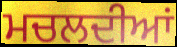
ਮਚਲਦੀਆਂ